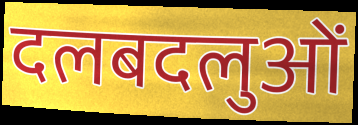
दलबदलुओं